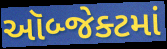
ઑબ્જેક્ટમાં